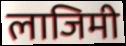
लाजिमी